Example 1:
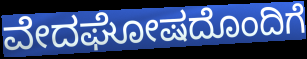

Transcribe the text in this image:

ವೇದಘೋಷದೊಂದಿಗೆ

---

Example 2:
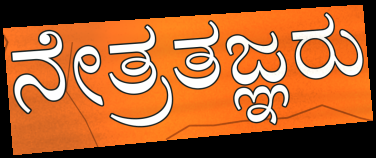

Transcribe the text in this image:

ನೇತ್ರತಜ್ಞರು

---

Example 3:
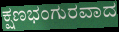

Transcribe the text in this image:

ಕ್ಷಣಭಂಗುರವಾದ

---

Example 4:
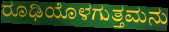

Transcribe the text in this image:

ರೂಢಿಯೊಳಗುತ್ತಮನು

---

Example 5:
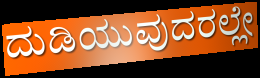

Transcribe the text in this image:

ದುಡಿಯುವುದರಲ್ಲೇ